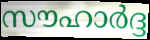
സൗഹാർദ്ദ